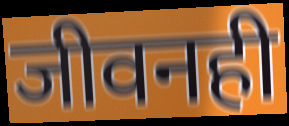
जीवनही